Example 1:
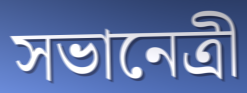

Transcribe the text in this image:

সভানেত্রী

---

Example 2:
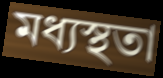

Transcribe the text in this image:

মধ্যস্থতা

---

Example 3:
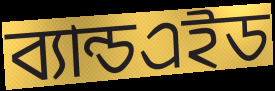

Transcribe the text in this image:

ব্যান্ডএইড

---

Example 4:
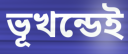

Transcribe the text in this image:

ভূখন্ডেই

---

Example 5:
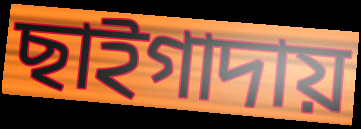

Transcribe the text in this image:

ছাইগাদায়